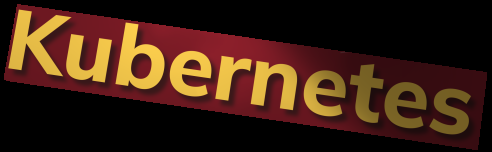
Kubernetes